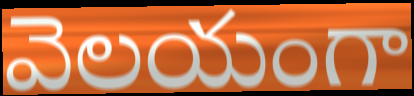
వెలయంగా